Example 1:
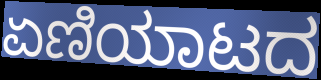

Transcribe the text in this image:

ಏಣಿಯಾಟದ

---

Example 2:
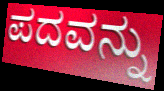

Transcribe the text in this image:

ಪದವನ್ನು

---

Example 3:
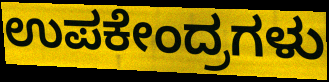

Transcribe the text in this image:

ಉಪಕೇಂದ್ರಗಳು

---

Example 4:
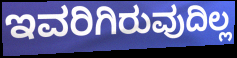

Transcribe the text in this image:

ಇವರಿಗಿರುವುದಿಲ್ಲ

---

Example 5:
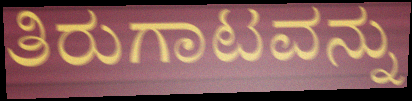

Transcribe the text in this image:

ತಿರುಗಾಟವನ್ನು